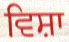
ਵਿਸ਼ਾ